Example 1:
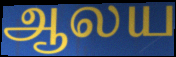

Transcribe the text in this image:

ஆலய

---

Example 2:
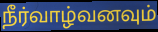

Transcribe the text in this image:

நீர்வாழ்வனவும்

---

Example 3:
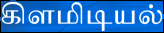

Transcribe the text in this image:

கிளமிடியல்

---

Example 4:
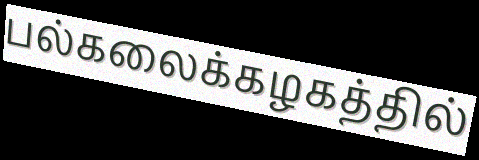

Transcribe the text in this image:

பல்கலைக்கழகத்தில்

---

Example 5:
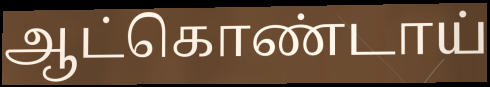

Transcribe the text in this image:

ஆட்கொண்டாய்